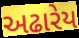
અઢારેય